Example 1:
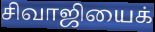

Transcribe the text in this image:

சிவாஜியைக்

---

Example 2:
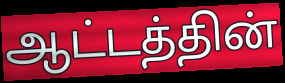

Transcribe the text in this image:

ஆட்டத்தின்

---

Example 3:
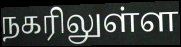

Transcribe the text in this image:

நகரிலுள்ள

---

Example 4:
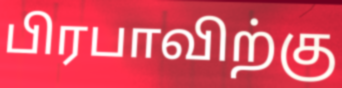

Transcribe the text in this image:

பிரபாவிற்கு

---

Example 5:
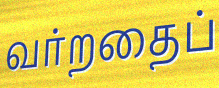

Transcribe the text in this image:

வர்றதைப்